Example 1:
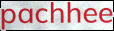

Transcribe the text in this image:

pachhee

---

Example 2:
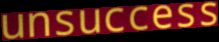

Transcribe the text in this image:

unsuccess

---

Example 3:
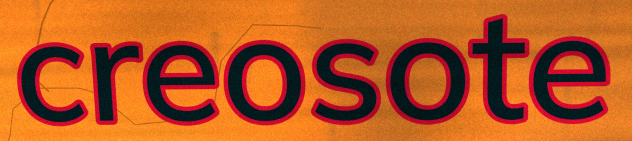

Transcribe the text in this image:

creosote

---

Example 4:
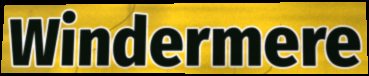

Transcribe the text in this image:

Windermere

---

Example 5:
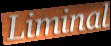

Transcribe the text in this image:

Liminal